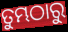
ତୁମ୍ଭଠାରୁ